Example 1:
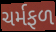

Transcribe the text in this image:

ચર્મફળ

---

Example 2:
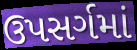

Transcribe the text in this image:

ઉપસર્ગમાં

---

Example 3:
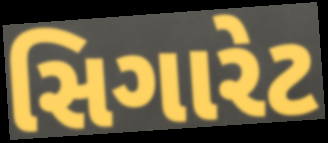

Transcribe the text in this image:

સિગારેટ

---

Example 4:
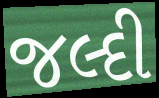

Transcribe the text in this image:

જલ્દી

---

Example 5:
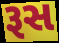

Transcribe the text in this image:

રૂસ